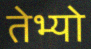
तेभ्यो